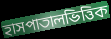
হাসপাতালভিত্তিক